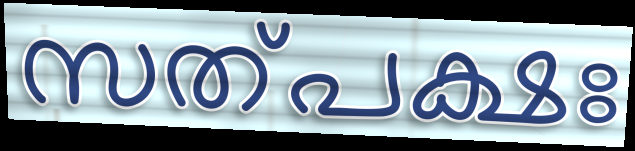
സത്പക്ഷഃ